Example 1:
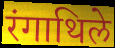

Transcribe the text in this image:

रंगाथिले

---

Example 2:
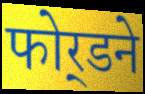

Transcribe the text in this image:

फोर्डने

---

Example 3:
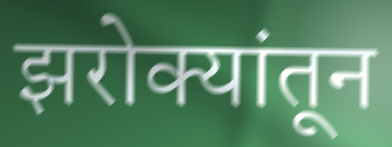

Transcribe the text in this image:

झरोक्यांतून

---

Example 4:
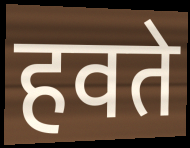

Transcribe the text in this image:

हवते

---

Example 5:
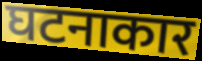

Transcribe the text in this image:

घटनाकार